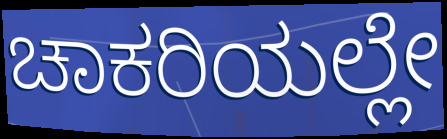
ಚಾಕರಿಯಲ್ಲೇ